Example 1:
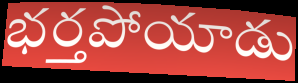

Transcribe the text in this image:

భర్తపోయాడు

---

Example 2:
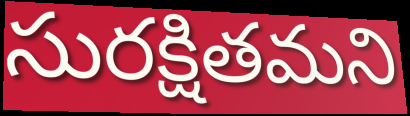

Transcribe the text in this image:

సురక్షితమని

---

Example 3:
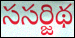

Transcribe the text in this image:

ససర్జిథ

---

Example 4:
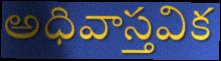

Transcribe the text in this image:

అధివాస్తవిక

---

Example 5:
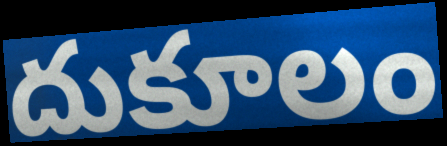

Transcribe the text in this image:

దుకూలం